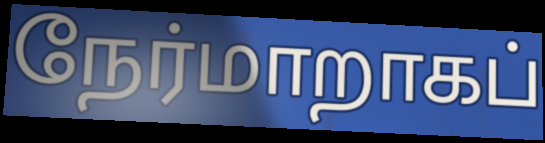
நேர்மாறாகப்